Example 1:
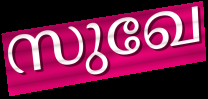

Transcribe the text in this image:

സുഖേ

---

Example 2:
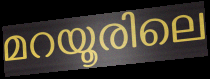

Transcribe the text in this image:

മറയൂരിലെ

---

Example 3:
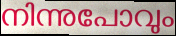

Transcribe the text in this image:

നിന്നുപോവും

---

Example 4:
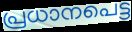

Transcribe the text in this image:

പ്രധാനപെട്ട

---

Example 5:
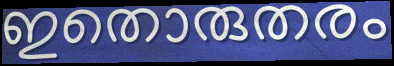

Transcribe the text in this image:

ഇതൊരുതരം